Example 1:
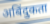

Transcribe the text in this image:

अबिंदुकता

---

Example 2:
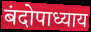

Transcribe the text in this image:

बंदोपाध्‍याय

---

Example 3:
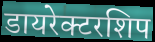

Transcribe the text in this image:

डायरेक्टरशिप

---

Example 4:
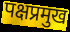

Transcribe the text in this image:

पक्षप्रमुख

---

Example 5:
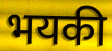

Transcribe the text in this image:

भयकी